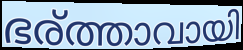
ഭര്ത്താവായി